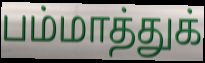
பம்மாத்துக்